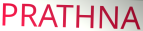
PRATHNA